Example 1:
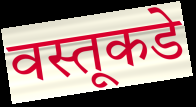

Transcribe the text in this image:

वस्तूकडे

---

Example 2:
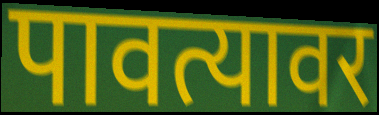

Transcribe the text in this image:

पावत्यावर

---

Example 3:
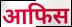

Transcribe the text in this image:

आफिस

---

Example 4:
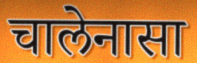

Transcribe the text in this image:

चालेनासा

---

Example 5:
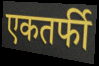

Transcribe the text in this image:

एकतर्फी